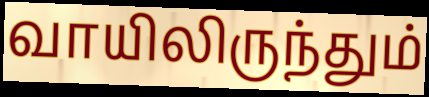
வாயிலிருந்தும்